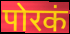
पोरकं